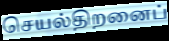
செயல்திறனைப்